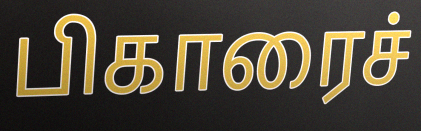
பிகாரைச்